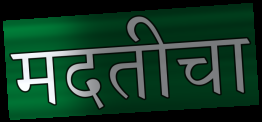
मदतीचा